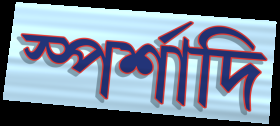
স্পর্শাদি